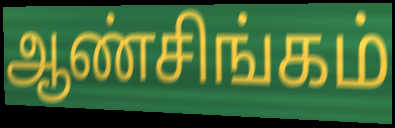
ஆண்சிங்கம்